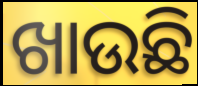
ଖାଉଛି